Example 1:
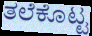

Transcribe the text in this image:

ತಲೆಕೊಟ್ಟ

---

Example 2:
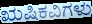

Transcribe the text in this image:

ಋಷಿಕವಿಗಳು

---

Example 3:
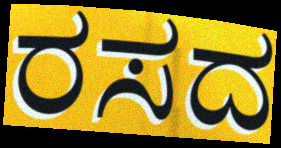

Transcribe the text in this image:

ರಸದ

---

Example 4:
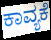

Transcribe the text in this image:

ಕಾವ್ಯಕೆ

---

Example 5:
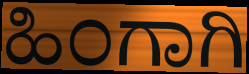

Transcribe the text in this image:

ಹಿಂಗಾಗಿ